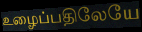
உழைப்பதிலேயே